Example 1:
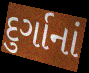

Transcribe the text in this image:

દુર્ગાનાં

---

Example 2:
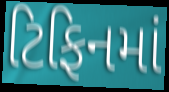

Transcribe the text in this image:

ટિફિનમાં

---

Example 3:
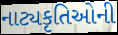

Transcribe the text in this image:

નાટ્યકૃતિઓની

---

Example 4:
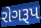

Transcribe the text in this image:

રોગરૂપ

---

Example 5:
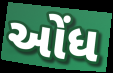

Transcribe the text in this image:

ઓંધ